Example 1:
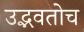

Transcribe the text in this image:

उद्भवतोच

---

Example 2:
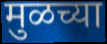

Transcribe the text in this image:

मुळच्या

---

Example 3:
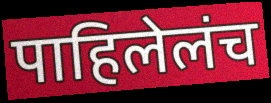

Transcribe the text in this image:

पाहिलेलंच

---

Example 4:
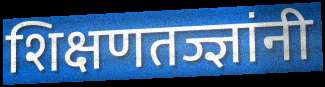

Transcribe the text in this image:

शिक्षणतज्ज्ञांनी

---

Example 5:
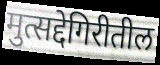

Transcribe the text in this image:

मुत्सद्देगिरीतील